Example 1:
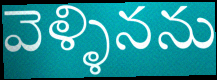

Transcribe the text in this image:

వెళ్ళినను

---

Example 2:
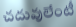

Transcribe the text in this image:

చదువులేంటీ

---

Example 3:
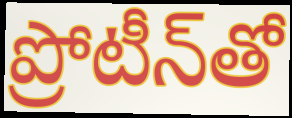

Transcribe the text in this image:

ప్రోటీన్‌తో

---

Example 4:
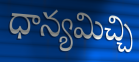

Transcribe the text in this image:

ధాన్యమిచ్చి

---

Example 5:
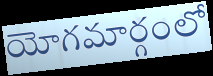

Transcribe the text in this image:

యోగమార్గంలో